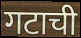
गटाची